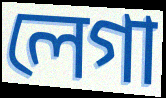
লেগা